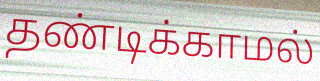
தண்டிக்காமல்